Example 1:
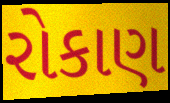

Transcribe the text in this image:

રોકાણ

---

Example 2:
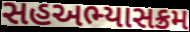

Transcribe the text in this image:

સહઅભ્યાસક્રમ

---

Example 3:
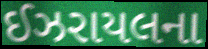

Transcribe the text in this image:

ઈઝરાયલના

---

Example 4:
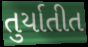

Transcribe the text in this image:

તુર્યાતીત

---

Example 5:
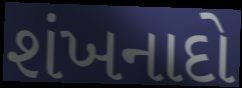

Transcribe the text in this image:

શંખનાદો